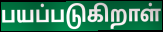
பயப்படுகிறாள்